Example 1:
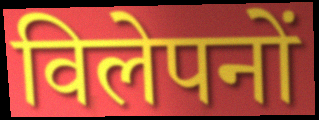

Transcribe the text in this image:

विलेपनों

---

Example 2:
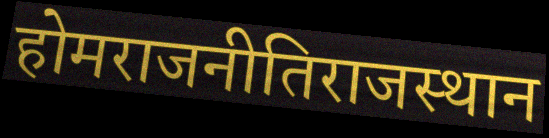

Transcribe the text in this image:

होमराजनीतिराजस्थान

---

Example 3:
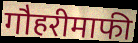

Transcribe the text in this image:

गौहरीमाफी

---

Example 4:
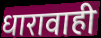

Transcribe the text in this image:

धारावाही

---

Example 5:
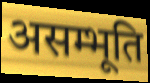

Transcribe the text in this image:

असम्भूति